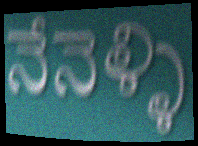
నేనెళ్ళి